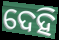
ଦେହି